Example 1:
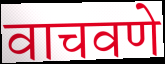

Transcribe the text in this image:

वाचवणे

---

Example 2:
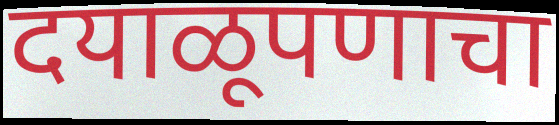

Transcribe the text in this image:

दयाळूपणाचा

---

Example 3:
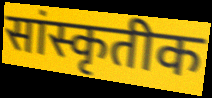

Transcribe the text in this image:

सांस्कृतीक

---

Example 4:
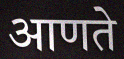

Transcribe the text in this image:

आणते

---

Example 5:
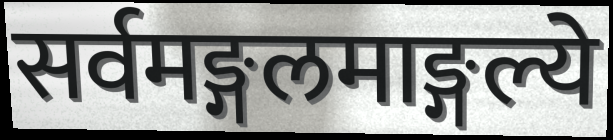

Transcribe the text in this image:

सर्वमङ्गलमाङ्गल्ये